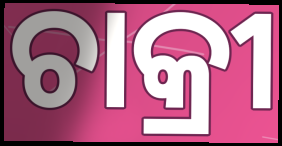
ଚାକ୍ରୀ